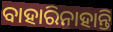
ବାହାରିନାହାନ୍ତି